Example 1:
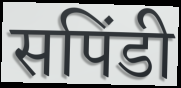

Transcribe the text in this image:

सपिंडी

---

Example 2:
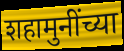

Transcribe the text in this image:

शहामुनींच्या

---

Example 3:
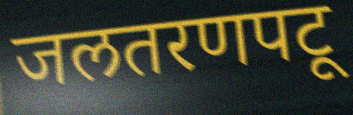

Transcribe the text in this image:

जलतरणपटू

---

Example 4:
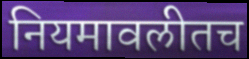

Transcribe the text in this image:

नियमावलीतच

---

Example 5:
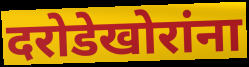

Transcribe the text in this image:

दरोडेखोरांना